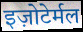
इज़ोटेर्मल